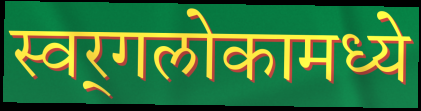
स्वर्गलोकामध्ये